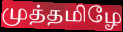
முத்தமிழே